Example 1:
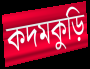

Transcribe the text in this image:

কদমকুড়ি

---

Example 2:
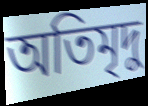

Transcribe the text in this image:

অতিমৃদু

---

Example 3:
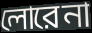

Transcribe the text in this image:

লোরেনা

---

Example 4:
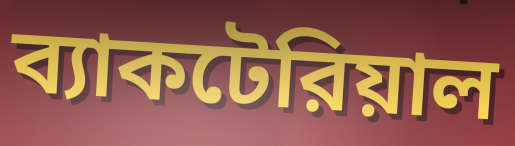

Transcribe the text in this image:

ব্যাকটেরিয়াল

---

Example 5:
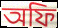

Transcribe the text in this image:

অফি